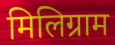
मिलिग्राम